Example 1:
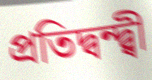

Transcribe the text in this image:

প্ৰতিদ্বন্দ্ব্বী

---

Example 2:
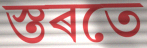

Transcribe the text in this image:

স্তৰতে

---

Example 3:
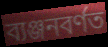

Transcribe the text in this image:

ব্যঞ্জনবৰ্ণত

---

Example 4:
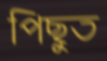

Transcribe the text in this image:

পিছুত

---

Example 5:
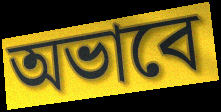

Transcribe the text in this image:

অভাবে